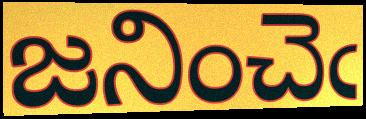
జనించెఁ